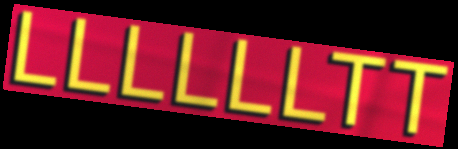
LLLLLLTT